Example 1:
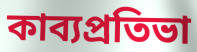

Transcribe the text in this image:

কাব্যপ্রতিভা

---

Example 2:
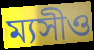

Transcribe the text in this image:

ম্যসীও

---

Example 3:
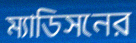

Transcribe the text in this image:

ম্যাডিসনের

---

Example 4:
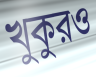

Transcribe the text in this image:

খুকুরও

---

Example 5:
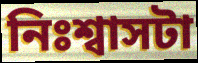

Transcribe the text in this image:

নিঃশ্বাসটা